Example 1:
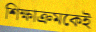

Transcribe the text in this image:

শিক্ষাক্রমকেই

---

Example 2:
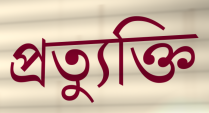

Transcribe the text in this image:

প্রত্যুক্তি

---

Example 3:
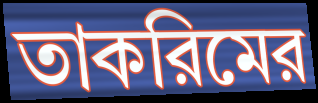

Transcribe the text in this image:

তাকরিমের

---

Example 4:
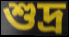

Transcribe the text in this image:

শুদ্র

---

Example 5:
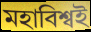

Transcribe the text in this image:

মহাবিশ্বই